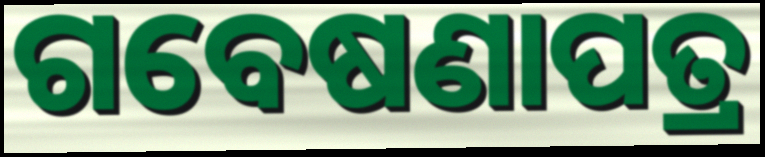
ଗବେଷଣାପତ୍ର